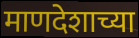
माणदेशाच्या